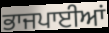
ਭਾਜਪਾਈਆਂ